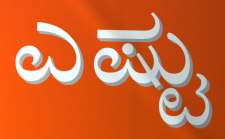
ಎಷ್ಟು